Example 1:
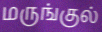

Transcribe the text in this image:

மருங்குல்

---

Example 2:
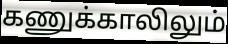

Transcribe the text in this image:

கணுக்காலிலும்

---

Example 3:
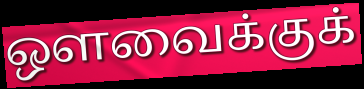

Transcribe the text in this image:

ஔவைக்குக்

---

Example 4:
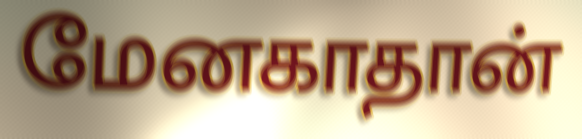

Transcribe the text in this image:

மேனகாதான்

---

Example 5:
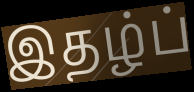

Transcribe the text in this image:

இதழ்ப்